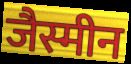
जैस्‍मीन